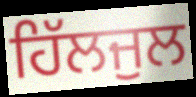
ਹਿੱਲਜੁਲ